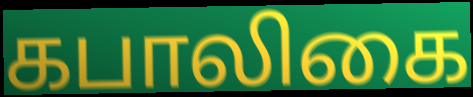
கபாலிகை